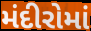
મંદીરોમાં